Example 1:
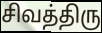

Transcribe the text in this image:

சிவத்திரு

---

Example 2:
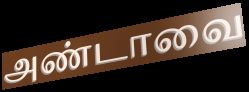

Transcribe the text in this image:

அண்டாவை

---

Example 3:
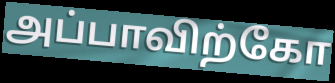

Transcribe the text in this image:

அப்பாவிற்கோ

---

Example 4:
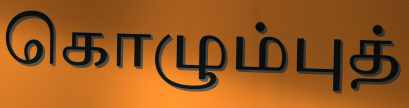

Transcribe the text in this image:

கொழும்புத்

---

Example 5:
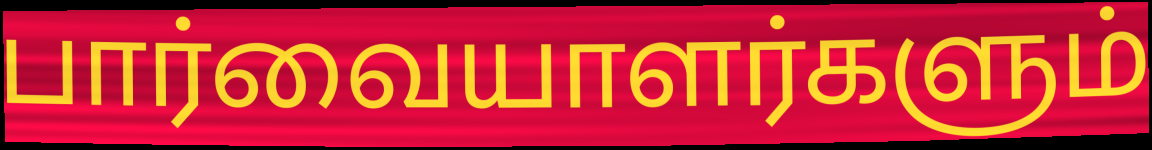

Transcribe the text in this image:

பார்வையாளர்களும்